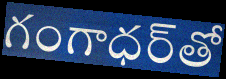
గంగాధర్‌తో